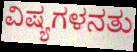
ವಿಷ್ಯಗಳನತು